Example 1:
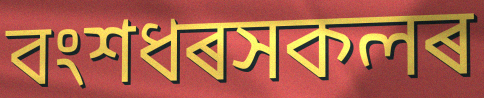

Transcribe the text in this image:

বংশধৰসকলৰ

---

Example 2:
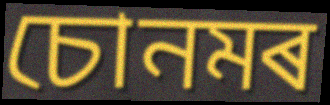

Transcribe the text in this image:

চোনমৰ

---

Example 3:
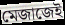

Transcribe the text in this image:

মেজাজেই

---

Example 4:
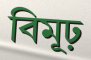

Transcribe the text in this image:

বিমূঢ়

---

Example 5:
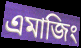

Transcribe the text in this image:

এমাজিং